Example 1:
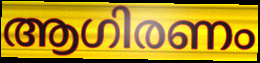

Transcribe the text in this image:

ആഗിരണം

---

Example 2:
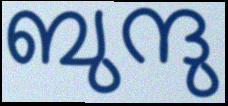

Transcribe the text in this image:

ബുന്ദു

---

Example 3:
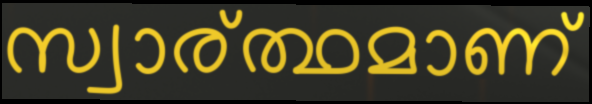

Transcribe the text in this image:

സ്വാര്ത്ഥമാണ്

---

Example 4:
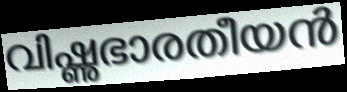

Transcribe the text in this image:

വിഷ്ണുഭാരതീയൻ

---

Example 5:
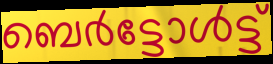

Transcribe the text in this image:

ബെർട്ടോൾട്ട്